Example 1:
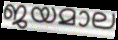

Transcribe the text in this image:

ജയമാല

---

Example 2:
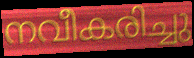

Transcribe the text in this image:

നവീകരിച്ചു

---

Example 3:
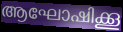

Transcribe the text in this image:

ആഘോഷിക്കൂ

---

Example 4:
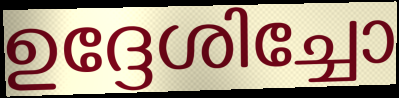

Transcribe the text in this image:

ഉദ്ദേശിച്ചോ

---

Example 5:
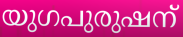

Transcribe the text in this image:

യുഗപുരുഷന്